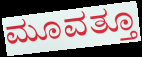
ಮೂವತ್ತೂ